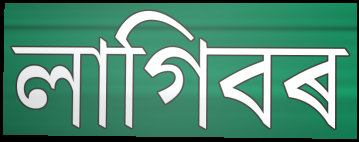
লাগিবৰ